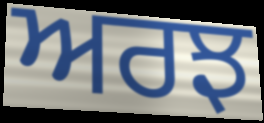
ਅਰਝ